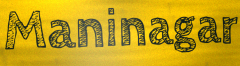
Maninagar